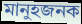
মানুহজনক